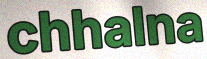
chhalna